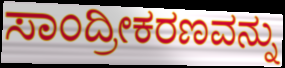
ಸಾಂದ್ರೀಕರಣವನ್ನು